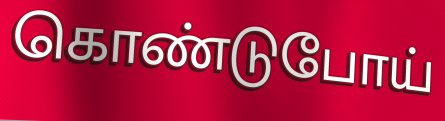
கொண்டுபோய்